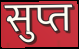
सुप्त